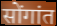
सोंगांत